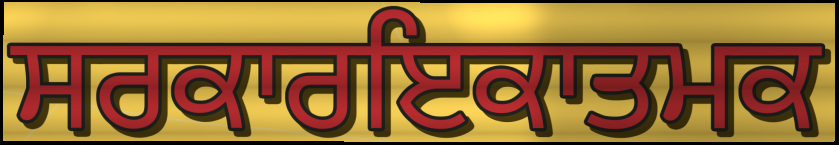
ਸਰਕਾਰਇਕਾਤਮਕ